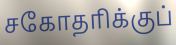
சகோதரிக்குப்